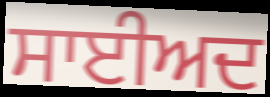
ਸਾਈਅਦ